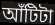
আঁটিটা